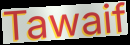
Tawaif